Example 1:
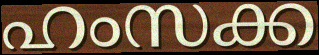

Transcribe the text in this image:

ഹംസക്ക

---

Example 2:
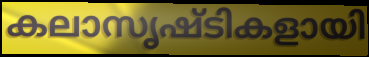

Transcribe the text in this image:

കലാസൃഷ്ടികളായി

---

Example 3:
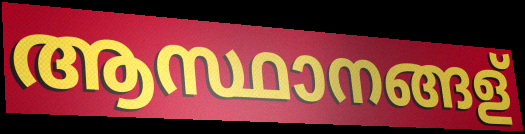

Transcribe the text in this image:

ആസ്ഥാനങ്ങള്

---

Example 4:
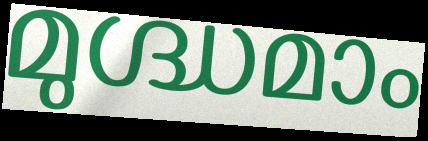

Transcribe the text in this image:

മുഗ്ദ്ധമാം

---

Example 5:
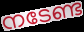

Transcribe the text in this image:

നടേണ്ട